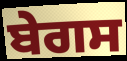
ਬੇਗਸ